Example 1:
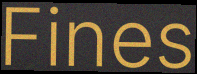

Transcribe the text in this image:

Fines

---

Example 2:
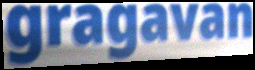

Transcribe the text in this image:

gragavan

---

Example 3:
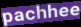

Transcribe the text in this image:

pachhee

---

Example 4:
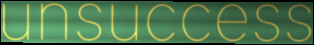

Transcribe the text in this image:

unsuccess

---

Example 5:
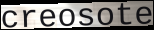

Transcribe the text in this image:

creosote